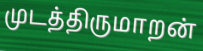
முடத்திருமாறன்